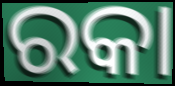
ରକା